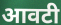
आवटी